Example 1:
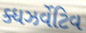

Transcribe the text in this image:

ક્ધઝર્વેટિવ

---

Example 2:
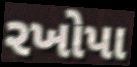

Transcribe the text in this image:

રખોપા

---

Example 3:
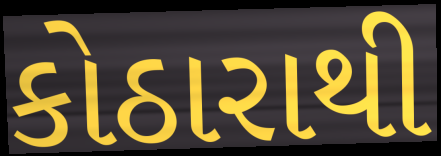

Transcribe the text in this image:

કોઠારાથી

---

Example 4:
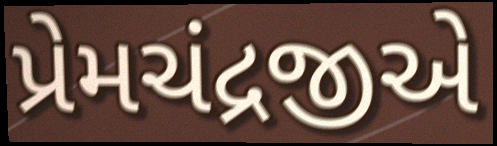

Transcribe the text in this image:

પ્રેમચંદ્રજીએ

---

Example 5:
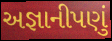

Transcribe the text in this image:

અજ્ઞાનીપણું